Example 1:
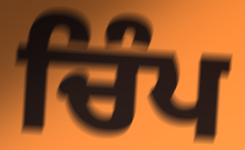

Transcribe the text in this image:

ਚਿੰਪ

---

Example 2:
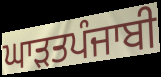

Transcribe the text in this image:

ਘਾੜਤਪੰਜਾਬੀ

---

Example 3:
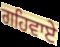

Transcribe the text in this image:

ਗਹਿਵਾਏ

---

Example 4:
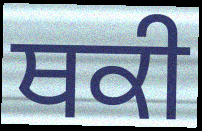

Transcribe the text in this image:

ਥਕੀ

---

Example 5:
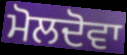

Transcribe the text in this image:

ਮੋਲਦੋਵਾ